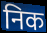
निक